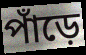
পাঁড়ে